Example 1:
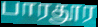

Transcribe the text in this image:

பாரதூர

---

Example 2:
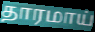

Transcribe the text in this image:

தாரமாய்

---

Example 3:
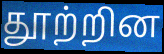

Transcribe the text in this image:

தூற்றின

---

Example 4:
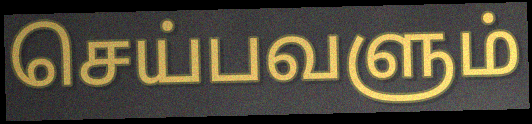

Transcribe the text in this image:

செய்பவளும்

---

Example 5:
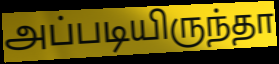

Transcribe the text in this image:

அப்படியிருந்தா